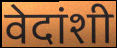
वेदांशी